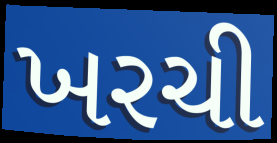
ખરચી